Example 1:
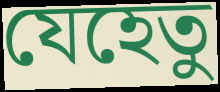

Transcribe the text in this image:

যেহেতু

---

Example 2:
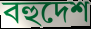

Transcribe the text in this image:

বহুদেশ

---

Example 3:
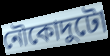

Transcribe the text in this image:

নৌকোদুটো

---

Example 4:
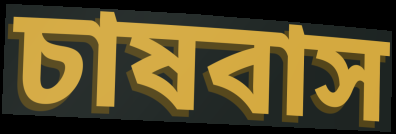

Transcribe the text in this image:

চাষবাস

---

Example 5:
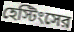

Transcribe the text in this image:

হেস্টিংসের